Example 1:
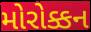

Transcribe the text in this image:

મોરોક્કન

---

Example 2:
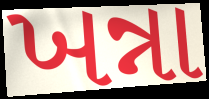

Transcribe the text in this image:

ખન્ના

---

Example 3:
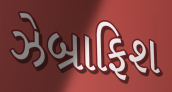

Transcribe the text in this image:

ઝેબ્રાફિશ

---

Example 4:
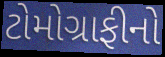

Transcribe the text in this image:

ટોમોગ્રાફીનો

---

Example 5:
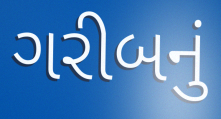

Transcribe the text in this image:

ગરીબનું